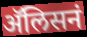
ॲलिसनं